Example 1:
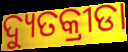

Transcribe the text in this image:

ଦ୍ୟୁତକ୍ରୀଡା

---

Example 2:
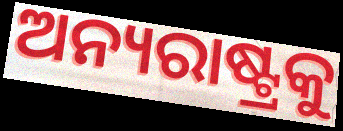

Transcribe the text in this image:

ଅନ୍ୟରାଷ୍ଟ୍ରକୁ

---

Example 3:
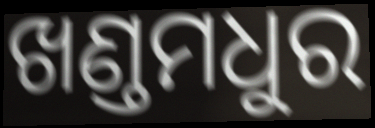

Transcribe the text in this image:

ଖଣ୍ଡମଧୁର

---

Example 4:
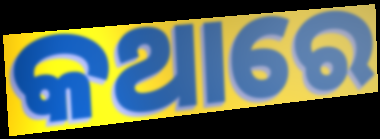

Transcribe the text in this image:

କଥାରେ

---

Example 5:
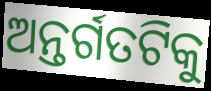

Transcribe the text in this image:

ଅନ୍ତର୍ଗତଟିକୁ